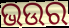
ଭଉର